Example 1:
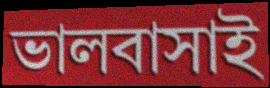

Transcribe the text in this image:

ভালবাসাই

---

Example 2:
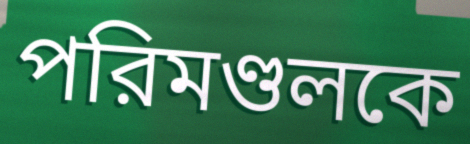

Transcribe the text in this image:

পরিমণ্ডলকে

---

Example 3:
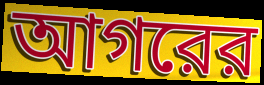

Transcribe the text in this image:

আগরের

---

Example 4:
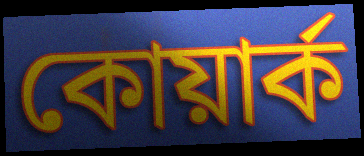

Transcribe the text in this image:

কোয়ার্ক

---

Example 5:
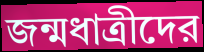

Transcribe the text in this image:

জন্মধাত্রীদের